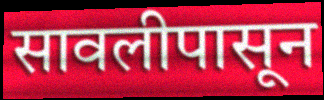
सावलीपासून